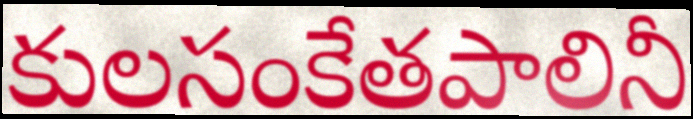
కులసంకేతపాలినీ